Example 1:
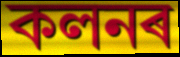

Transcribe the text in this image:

কলনৰ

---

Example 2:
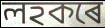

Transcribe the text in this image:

লহকৰে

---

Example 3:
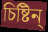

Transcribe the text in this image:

চিষ্টিন্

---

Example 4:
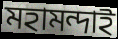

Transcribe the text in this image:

মহামন্দাই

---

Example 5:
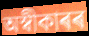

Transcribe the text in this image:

অস্বীকাৰৰ